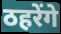
ठहरेंगे